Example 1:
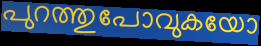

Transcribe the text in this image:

പുറത്തുപോവുകയോ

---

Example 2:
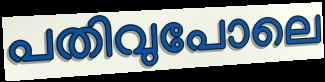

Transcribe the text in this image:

പതിവുപോലെ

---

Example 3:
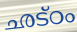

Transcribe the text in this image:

ഛട്ഠം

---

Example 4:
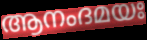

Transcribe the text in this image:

ആനംദമയഃ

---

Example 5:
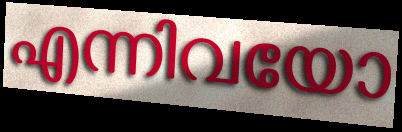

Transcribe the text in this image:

എന്നിവയോ